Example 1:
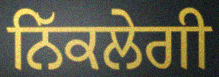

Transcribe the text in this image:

ਨਿੱਕਲੇਗੀ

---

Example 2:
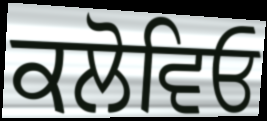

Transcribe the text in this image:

ਕਲੋਵਿਓ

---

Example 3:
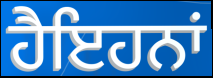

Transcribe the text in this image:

ਹੈਇਹਨਾਂ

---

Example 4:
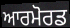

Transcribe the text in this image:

ਆਰਮੋਰਡ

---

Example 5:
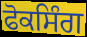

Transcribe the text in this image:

ਫੋਕਸਿੰਗ